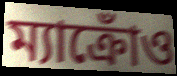
ম্যাক্রোঁও